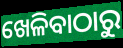
ଖେଳିବାଠାରୁ